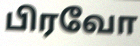
பிரவோ